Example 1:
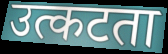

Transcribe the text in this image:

उत्कटता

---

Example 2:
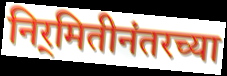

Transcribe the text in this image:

निर्मितीनंतरच्या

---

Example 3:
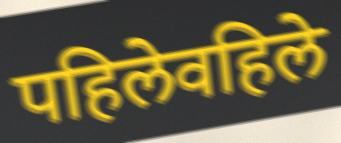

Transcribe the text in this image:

पहिलेवहिले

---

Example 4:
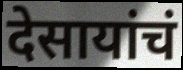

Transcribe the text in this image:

देसायांचं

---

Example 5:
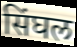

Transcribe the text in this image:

सिंघल